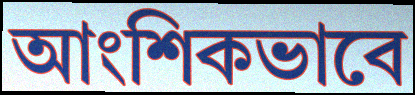
আংশিকভাবে